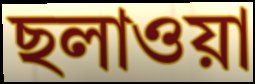
ছলাওয়া